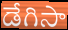
డేగిసా